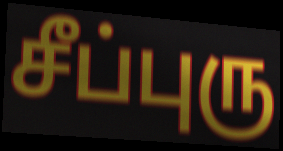
சீப்புரு